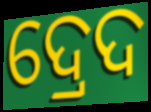
ଦ୍ରେଦ